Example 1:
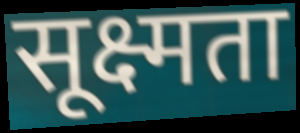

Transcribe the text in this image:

सूक्ष्मता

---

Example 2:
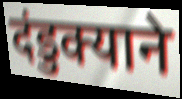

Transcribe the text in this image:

दंडुक्याने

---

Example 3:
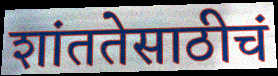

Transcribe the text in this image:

शांततेसाठीचं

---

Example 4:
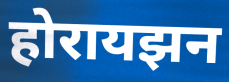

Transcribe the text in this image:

होरायझन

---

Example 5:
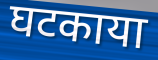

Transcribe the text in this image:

घटकाया